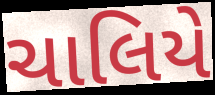
ચાલિયે